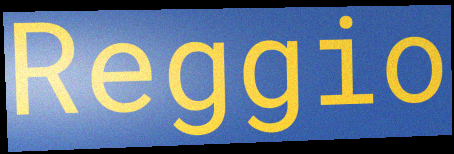
Reggio